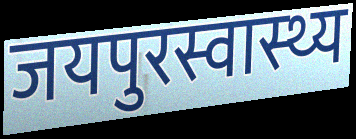
जयपुरस्वास्थ्य